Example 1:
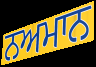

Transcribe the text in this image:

ਨਅਮਾਨ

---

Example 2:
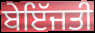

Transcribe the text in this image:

ਬੇਇੱਜਤੀ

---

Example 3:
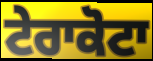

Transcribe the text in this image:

ਟੇਰਾਕੋਟਾ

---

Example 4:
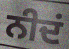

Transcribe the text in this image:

ਨੀਦਂ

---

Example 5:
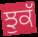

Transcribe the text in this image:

ਝੁਕੱ